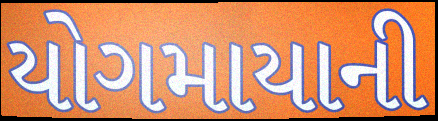
યોગમાયાની